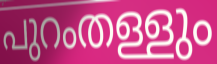
പുറംതള്ളും